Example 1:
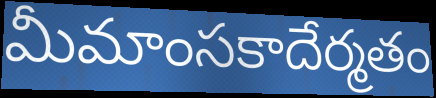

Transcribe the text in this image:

మీమాంసకాదేర్మతం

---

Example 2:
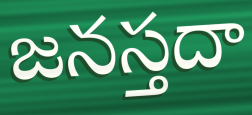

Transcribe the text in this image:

జనస్తదా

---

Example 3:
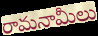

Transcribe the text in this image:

రామనామీలు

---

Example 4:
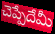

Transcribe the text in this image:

చెప్పేదేమీ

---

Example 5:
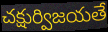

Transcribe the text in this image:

చక్షుర్విజయతే